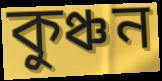
কুঞ্চন